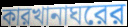
কারখানাঘরের